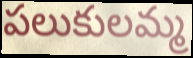
పలుకులమ్మ